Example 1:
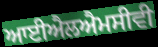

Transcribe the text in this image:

ਆਈਐਲਐਮਸੀਵੀ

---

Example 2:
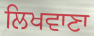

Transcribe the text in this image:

ਲਿਖਵਾਣਾ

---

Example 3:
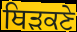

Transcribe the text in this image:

ਥਿੜਕਣੇ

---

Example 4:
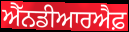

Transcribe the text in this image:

ਐੱਨਡੀਆਰਐਫ਼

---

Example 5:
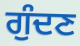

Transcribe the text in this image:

ਗੁੰਦਣ